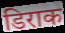
डिराक